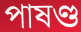
পাষণ্ড